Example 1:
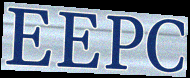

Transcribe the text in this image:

EEPC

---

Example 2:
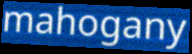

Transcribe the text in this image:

mahogany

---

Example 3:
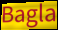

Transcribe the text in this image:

Bagla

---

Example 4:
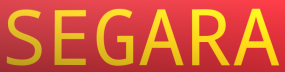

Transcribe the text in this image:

SEGARA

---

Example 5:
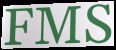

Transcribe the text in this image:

FMS